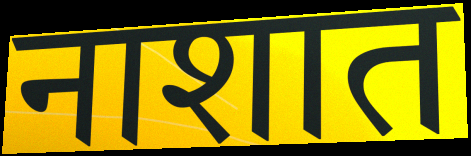
नाशात